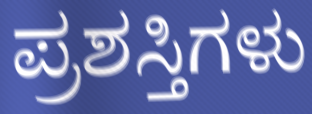
ಪ್ರಶಸ್ತಿಗಳು